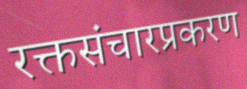
रक्तसंचारप्रकरण